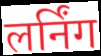
लर्निंग